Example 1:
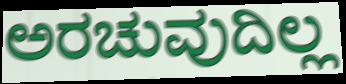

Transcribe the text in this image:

ಅರಚುವುದಿಲ್ಲ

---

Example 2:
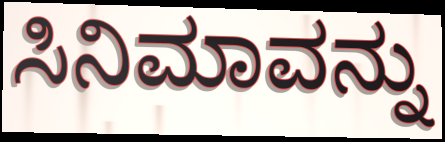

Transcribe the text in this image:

ಸಿನಿಮಾವನ್ನು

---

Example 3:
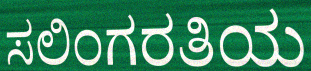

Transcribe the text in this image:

ಸಲಿಂಗರತಿಯ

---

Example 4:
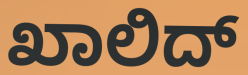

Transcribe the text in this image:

ಖಾಲಿದ್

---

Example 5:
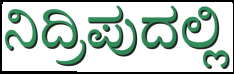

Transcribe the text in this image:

ನಿದ್ರಿಪುದಲ್ಲಿ